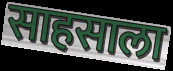
साहसाला